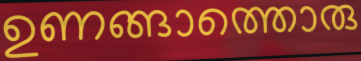
ഉണങ്ങാത്തൊരു